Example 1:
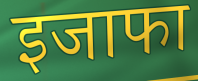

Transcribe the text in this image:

इजाफा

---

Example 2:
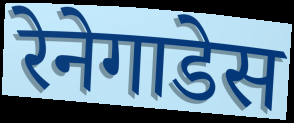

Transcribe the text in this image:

रेनेगाडेस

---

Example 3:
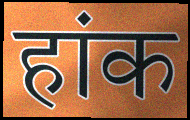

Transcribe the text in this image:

हांक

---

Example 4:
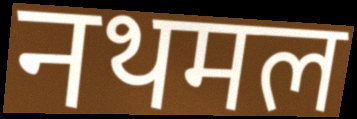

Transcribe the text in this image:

नथमल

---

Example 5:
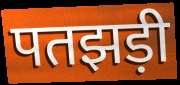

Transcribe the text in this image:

पतझड़ी